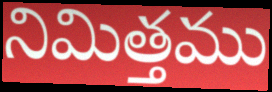
నిమిత్తము